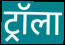
ट्रॉला